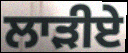
ਲਾੜੀਏ